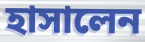
হাসালেন